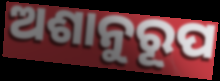
ଅଶାନୁରୂପ